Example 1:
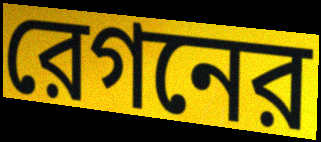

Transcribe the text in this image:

রেগনের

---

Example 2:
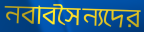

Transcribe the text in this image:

নবাবসৈন্যদের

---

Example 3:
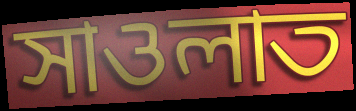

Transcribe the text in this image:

সাওলাত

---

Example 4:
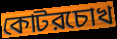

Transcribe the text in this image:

কোটরচোখ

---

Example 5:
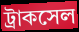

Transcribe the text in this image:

ট্রাকসেল